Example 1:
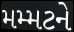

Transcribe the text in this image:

મમ્મટને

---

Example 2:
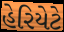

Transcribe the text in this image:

હેરિયેટે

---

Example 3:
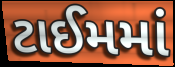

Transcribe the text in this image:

ટાઈમમાં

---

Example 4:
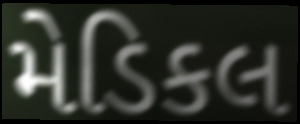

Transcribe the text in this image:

મેડિકલ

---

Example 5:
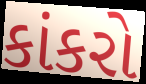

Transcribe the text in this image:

કાંકરો